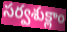
సర్వశుక్లాం